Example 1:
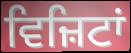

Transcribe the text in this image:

ਵਿਜ਼ਿਟਾਂ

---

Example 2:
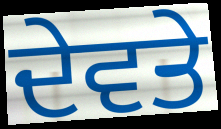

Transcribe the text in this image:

ਦੇਵਤੇ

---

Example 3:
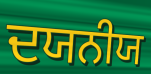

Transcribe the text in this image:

ਦਯਨੀਯ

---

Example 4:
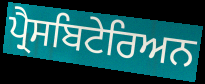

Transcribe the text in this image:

ਪ੍ਰੈਸਬਿਟੇਰਿਅਨ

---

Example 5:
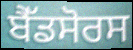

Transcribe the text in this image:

ਬੈੱਡਸੋਰਸ